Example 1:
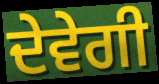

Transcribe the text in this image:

ਦੇਵੇਗੀ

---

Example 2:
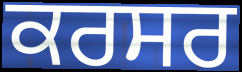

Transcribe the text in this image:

ਕਰਸਰ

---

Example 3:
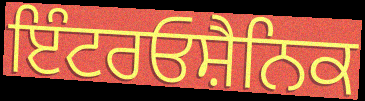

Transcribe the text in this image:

ਇੰਟਰਓਸ਼ੈਨਿਕ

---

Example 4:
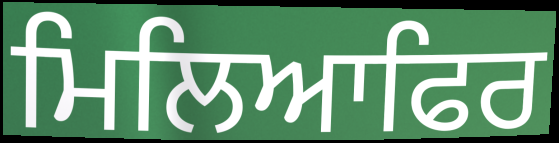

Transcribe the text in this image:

ਮਿਲਿਆਫਿਰ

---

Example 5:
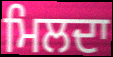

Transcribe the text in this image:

ਮਿਲਦਾ